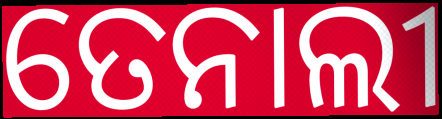
ତେନାଲୀ